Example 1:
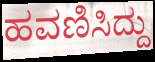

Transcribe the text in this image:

ಹವಣಿಸಿದ್ದು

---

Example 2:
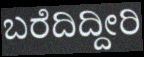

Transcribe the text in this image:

ಬರೆದಿದ್ದೀರಿ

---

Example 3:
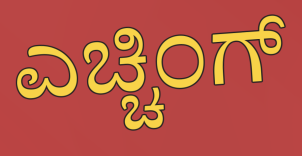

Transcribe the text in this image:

ಎಚ್ಚಿಂಗ್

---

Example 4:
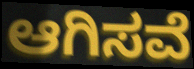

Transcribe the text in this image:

ಆಗಿಸವೆ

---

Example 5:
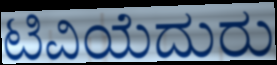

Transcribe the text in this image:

ಟಿವಿಯೆದುರು